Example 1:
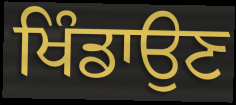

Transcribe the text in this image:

ਖਿੰਡਾਉਣ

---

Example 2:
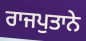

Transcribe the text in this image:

ਰਾਜਪੁਤਾਨੇ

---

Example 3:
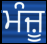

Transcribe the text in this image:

ਮੰਜ਼ੂ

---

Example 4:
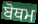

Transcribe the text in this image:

ਬੋਥਮ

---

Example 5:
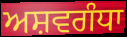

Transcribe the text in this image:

ਅਸ਼ਵਗੰਧਾ